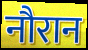
नौरान